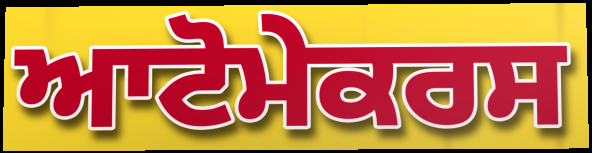
ਆਟੋਮੇਕਰਸ